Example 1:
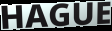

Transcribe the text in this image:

HAGUE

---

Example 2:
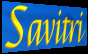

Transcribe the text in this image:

Savitri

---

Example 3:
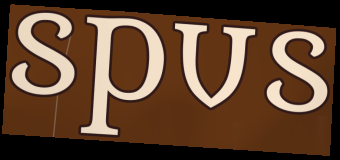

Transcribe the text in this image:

spus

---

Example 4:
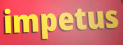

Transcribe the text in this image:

impetus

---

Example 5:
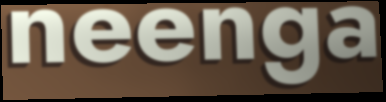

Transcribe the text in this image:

neenga